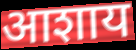
आशाय